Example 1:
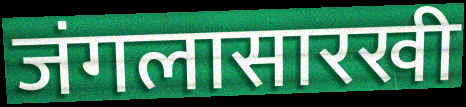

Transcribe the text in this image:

जंगलासारखी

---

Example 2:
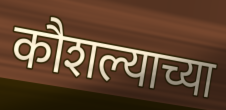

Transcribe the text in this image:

कौशल्याच्या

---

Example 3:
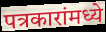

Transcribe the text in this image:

पत्रकारांमध्ये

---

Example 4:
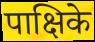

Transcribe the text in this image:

पाक्षिके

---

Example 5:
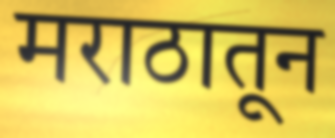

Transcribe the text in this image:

मराठातून